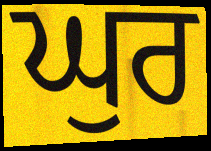
ਘੁਰ